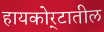
हायकोर्टातील